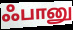
ஃபானு